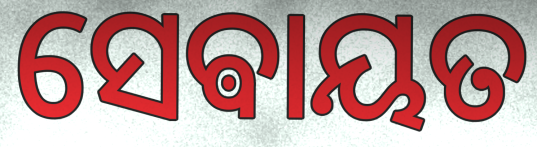
ସେଵାୟତ